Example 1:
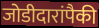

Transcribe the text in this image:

जोडीदारांपैकी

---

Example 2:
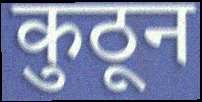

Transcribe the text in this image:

कुठून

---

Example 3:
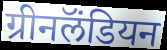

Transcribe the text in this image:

ग्रीनलॅंडियन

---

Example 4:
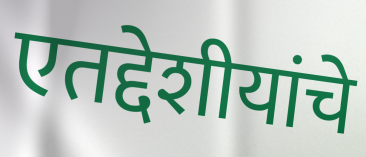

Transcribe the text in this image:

एतद्देशीयांचे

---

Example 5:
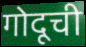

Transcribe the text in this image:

गोदूची